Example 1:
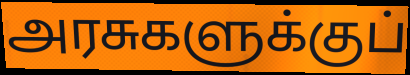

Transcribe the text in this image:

அரசுகளுக்குப்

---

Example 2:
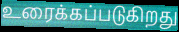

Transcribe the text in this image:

உரைக்கப்படுகிறது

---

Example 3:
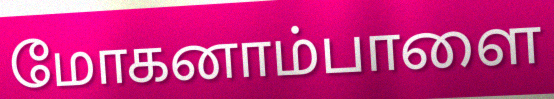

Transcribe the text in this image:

மோகனாம்பாளை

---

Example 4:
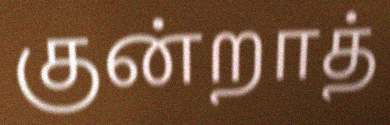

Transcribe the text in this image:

குன்றாத்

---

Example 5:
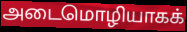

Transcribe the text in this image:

அடைமொழியாகக்